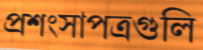
প্রশংসাপত্রগুলি